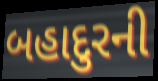
બહાદુરની